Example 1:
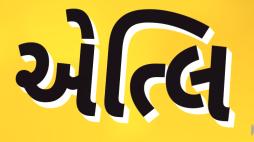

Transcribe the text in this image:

એત્લિ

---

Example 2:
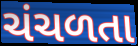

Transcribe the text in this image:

ચંચળતા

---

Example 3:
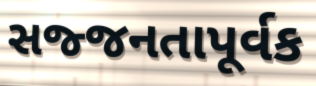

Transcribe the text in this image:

સજ્જનતાપૂર્વક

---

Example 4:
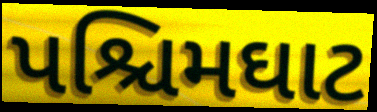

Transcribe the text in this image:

પશ્ચિમઘાટ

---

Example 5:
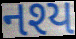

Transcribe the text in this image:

નશ્ય